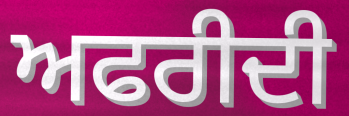
ਅਫਰੀਦੀ